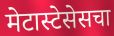
मेटास्टेसेसचा